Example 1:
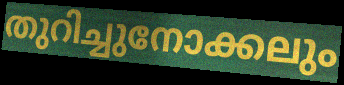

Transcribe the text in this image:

തുറിച്ചുനോക്കലും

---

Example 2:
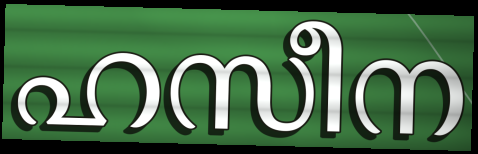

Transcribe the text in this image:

ഹസീന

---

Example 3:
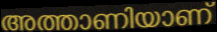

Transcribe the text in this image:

അത്താണിയാണ്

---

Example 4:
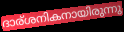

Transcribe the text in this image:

ദാര്ശനികനായിരുന്നു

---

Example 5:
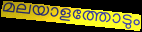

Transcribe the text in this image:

മലയാളത്തോടും